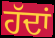
ਹੱਦਾਂ